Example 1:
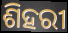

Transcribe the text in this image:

ଶିହରୀ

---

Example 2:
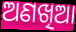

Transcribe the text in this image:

ଅଣଖିଆ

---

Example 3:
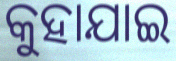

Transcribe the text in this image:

କୁହାଯାଇ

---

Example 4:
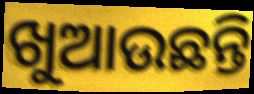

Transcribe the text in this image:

ଖୁଆଉଛନ୍ତି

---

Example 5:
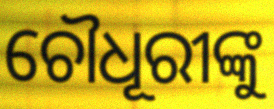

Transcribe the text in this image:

ଚୌଧୂରୀଙ୍କୁ